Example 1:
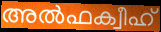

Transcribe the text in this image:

അൽഫക്വീഹ്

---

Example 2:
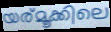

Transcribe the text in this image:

യര്മൂക്കിലെ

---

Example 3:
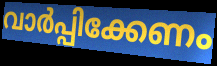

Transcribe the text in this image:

വാർപ്പിക്കേണം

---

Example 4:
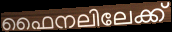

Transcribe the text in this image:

ഫൈനലിലേക്ക്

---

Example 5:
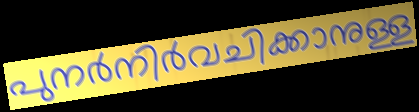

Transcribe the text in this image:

പുനർനിർവചിക്കാനുള്ള